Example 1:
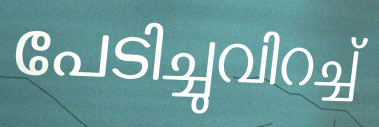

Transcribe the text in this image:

പേടിച്ചുവിറച്ച്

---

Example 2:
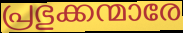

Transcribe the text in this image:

പ്രഭുക്കന്മാരേ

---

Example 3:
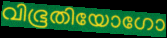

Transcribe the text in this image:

വിഭൂതിയോഗോ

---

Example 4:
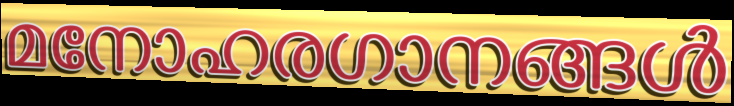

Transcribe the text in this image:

മനോഹരഗാനങ്ങൾ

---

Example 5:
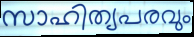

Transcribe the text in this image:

സാഹിത്യപരവും